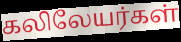
கலிலேயர்கள்